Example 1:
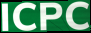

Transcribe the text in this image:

ICPC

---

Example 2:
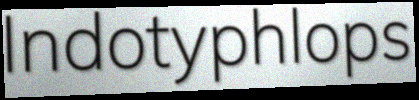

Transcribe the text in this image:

Indotyphlops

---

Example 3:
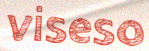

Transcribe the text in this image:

viseso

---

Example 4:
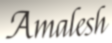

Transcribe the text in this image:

Amalesh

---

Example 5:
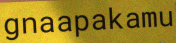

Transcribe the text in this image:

gnaapakamu